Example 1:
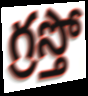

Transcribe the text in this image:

గ్రస్తో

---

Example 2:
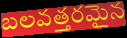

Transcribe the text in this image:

బలవత్తరమైన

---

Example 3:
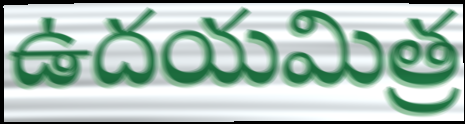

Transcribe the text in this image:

ఉదయమిత్ర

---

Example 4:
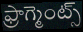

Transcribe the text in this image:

ఫ్రాగ్మెంట్స్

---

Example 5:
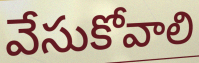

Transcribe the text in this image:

వేసుకోవాలి